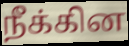
நீக்கின